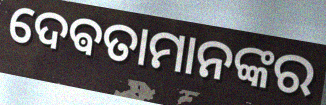
ଦେଵତାମାନଙ୍କର